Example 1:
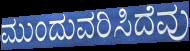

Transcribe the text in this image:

ಮುಂದುವರಿಸಿದೆವು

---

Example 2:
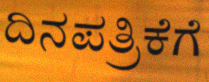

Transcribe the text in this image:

ದಿನಪತ್ರಿಕೆಗೆ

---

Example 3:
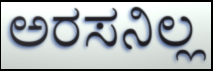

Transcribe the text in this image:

ಅರಸನಿಲ್ಲ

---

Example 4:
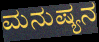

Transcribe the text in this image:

ಮನುಷ್ಯನ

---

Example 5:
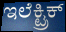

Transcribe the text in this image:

ಇಲೆಕ್ಟ್ರಿಕ್